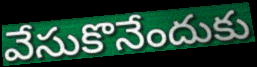
వేసుకొనేందుకు